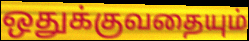
ஒதுக்குவதையும்